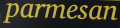
parmesan